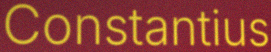
Constantius